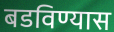
बडविण्यास